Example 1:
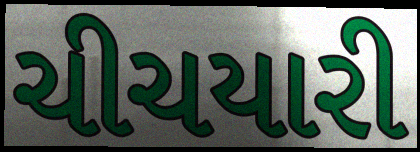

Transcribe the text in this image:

ચીચયારી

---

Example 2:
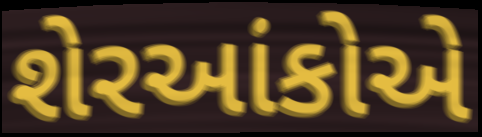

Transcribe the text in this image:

શેરઆંકોએ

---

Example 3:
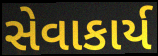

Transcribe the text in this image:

સેવાકાર્ય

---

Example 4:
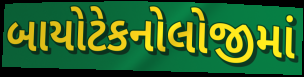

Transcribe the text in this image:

બાયોટેકનોલોજીમાં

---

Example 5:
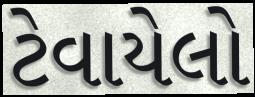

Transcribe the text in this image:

ટેવાયેલો